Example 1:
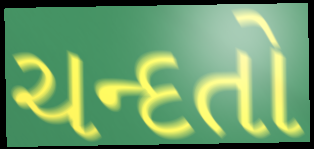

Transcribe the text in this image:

ચન્દતો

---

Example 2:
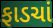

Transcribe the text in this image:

ફાડચાં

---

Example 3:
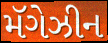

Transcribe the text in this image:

મૅગેઝીન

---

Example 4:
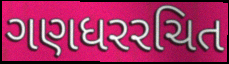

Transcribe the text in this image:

ગણધરરચિત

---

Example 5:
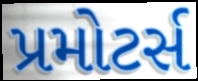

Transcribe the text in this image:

પ્રમોટર્સ